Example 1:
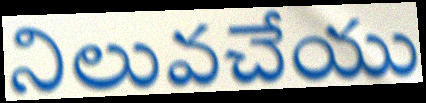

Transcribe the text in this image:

నిలువచేయు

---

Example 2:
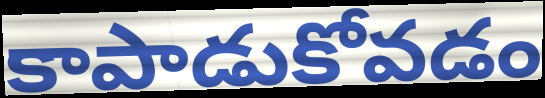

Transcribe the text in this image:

కాపాడుకోవడం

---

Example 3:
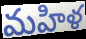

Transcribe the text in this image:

మహిళ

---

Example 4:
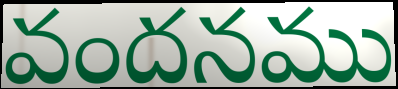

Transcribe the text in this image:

వందనము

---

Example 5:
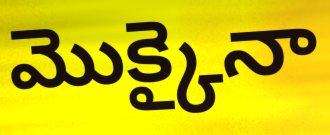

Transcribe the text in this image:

మొక్కైనా